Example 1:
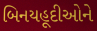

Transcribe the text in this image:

બિનયહૂદીઓને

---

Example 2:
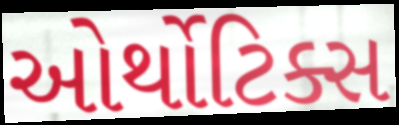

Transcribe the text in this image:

ઓર્થોટિક્સ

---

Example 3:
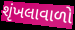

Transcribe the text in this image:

શૃંખલાવાળો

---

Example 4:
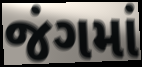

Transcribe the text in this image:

જંગમાં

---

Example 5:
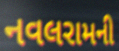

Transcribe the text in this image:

નવલરામની